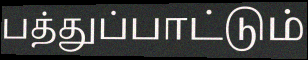
பத்துப்பாட்டும்